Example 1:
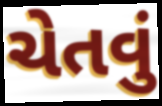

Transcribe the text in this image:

ચેતવું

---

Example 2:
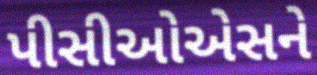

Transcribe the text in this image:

પીસીઓએસને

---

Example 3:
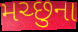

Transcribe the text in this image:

મચ્છુના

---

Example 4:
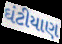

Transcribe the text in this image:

ઘંટીયાણ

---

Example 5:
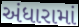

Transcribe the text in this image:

અંધારામાં